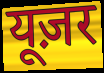
यूज़र